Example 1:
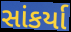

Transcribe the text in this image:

સાંકર્યા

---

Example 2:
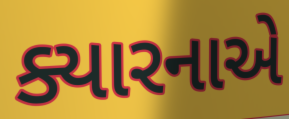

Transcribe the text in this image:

ક્યારનાએ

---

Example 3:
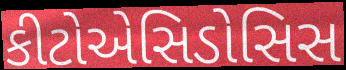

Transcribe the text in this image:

કીટોએસિડોસિસ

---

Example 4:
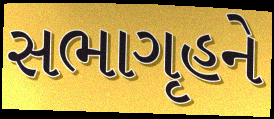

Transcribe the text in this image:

સભાગૃહને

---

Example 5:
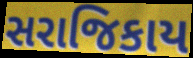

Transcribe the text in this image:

સરાજિકાય